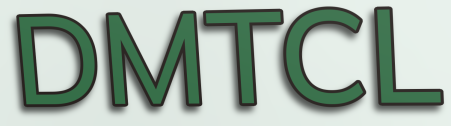
DMTCL